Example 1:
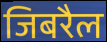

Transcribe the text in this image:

जिबरैल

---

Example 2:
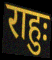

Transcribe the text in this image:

राहुः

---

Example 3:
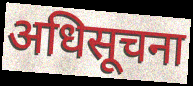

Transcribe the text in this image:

अधिसूचना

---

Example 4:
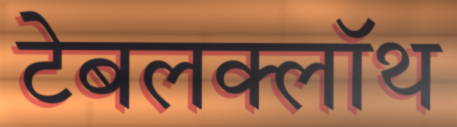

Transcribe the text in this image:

टेबलक्लॉथ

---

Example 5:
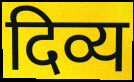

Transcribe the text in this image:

दिव्य